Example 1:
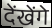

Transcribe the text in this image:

देंखेंगे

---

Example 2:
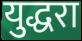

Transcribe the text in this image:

युद्धरा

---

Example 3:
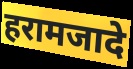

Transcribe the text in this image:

हरामजादे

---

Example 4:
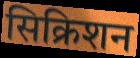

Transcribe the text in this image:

सिक्रिशन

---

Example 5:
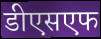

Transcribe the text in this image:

डीएसएफ